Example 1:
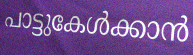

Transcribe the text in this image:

പാട്ടുകേൾക്കാൻ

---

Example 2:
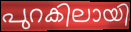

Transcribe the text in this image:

പുറകിലായി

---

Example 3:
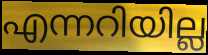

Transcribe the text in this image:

എന്നറിയില്ല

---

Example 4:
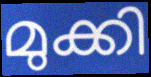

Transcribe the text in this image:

മുക്കി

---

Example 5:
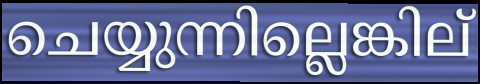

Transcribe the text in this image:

ചെയ്യുന്നില്ലെങ്കില്